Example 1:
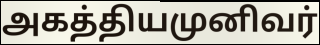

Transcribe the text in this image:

அகத்தியமுனிவர்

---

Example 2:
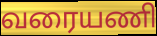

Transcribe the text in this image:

வரையணி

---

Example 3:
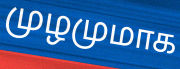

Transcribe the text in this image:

முழமுமாக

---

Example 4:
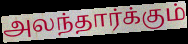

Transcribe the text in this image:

அலந்தார்க்கும்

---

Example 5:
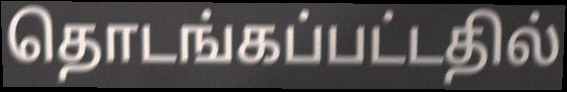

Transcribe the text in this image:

தொடங்கப்பட்டதில்